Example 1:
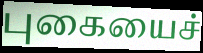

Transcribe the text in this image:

புகையைச்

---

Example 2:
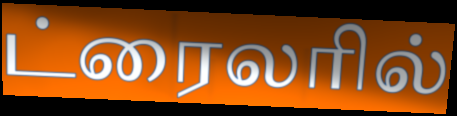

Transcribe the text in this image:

ட்ரைலரில்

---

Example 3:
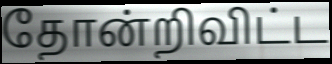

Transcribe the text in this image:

தோன்றிவிட்ட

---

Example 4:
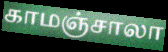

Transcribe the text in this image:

காமஞ்சாலா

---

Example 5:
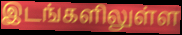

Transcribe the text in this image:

இடங்களிலுள்ள